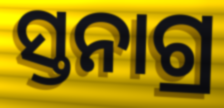
ସ୍ତନାଗ୍ର